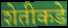
शेतीकडे